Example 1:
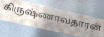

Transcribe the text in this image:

கிருஷ்ணாவதாரன்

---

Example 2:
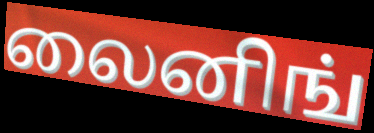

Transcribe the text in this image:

லைனிங்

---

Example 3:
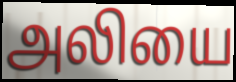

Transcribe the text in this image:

அலியை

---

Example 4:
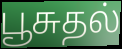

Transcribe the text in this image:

பூசுதல்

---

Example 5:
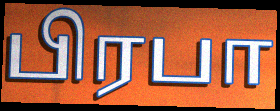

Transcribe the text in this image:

பிரபா